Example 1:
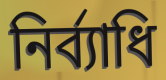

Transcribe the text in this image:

নির্ব্যাধি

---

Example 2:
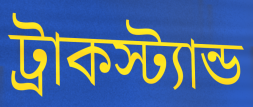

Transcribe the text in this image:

ট্রাকস্ট্যান্ড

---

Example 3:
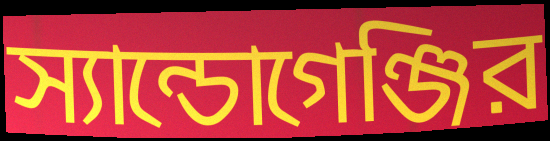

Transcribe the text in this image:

স্যান্ডোগেঞ্জির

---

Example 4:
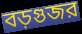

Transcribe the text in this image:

বড়গুজর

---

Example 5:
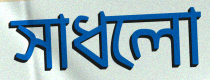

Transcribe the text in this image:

সাধলো